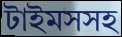
টাইমসসহ